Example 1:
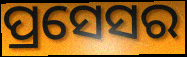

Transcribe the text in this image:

ପ୍ରସେସର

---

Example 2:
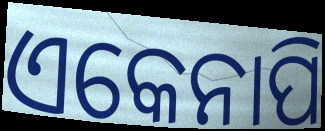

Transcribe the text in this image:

ଏକେନାପି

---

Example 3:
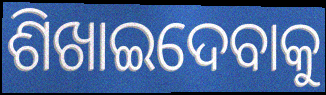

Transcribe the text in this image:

ଶିଖାଇଦେବାକୁ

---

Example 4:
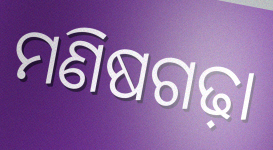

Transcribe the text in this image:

ମଣିଷଗଢ଼ା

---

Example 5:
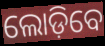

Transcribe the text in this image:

ଲୋଡ଼ିବେ